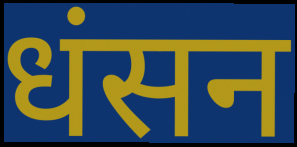
धंसन